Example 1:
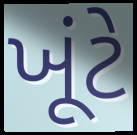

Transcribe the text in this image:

ખૂંટે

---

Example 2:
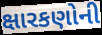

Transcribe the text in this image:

ક્ષારકણોની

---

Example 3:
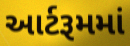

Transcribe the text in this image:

આર્ટરૂમમાં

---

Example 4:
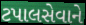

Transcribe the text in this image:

ટપાલસેવાને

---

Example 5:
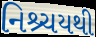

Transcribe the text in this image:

નિશ્ર્ચયથી